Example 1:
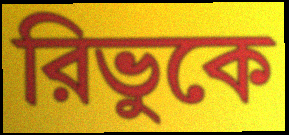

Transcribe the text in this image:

রিভুকে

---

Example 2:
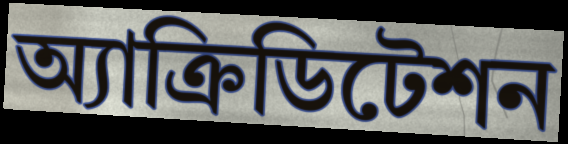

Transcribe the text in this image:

অ্যাক্রিডিটেশন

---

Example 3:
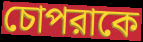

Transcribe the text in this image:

চোপরাকে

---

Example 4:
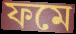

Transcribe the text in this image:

ফমে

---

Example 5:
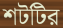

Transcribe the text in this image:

শটটির